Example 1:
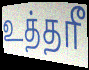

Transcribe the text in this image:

உத்தரீ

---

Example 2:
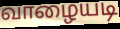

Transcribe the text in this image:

வாழையடி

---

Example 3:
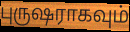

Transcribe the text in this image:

புருஷராகவும்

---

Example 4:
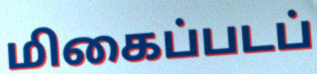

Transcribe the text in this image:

மிகைப்படப்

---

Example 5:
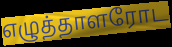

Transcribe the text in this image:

எழுத்தாளரோட